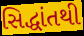
સિદ્ધાંતથી